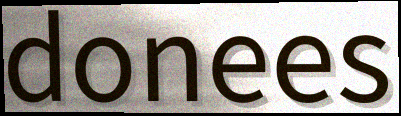
donees